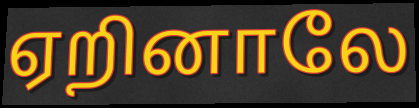
ஏறினாலே